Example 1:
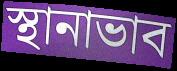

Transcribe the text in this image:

স্থানাভাব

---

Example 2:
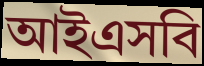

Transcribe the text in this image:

আইএসবি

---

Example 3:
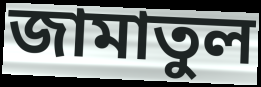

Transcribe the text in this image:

জামাতুল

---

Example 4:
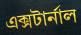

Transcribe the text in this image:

এক্সটার্নাল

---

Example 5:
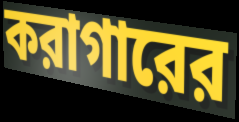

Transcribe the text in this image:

করাগারের